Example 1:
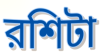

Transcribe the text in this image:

রশিটা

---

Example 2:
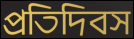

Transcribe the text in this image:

প্রতিদিবস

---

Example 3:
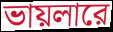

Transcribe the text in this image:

ভায়লারে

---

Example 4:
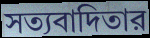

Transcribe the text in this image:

সত্যবাদিতার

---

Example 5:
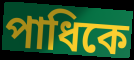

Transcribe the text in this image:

পাধিকে